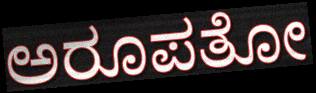
ಅರೂಪತೋ